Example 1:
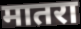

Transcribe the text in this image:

मातरा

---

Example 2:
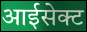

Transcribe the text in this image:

आईसेक्ट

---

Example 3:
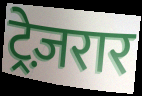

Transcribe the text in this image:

ट्रेज़रार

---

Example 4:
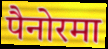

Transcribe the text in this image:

पैनोरमा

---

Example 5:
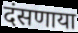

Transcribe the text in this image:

दंसणाया